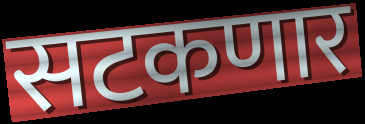
सटकणार